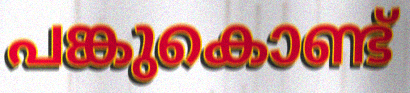
പങ്കുകൊണ്ട്